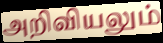
அறிவியலும்